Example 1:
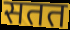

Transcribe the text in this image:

सतत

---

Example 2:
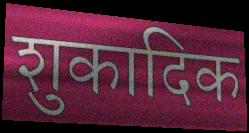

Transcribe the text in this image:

शुकादिक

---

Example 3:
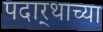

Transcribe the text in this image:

पदार्थाच्या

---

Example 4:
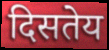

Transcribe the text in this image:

दिसतेय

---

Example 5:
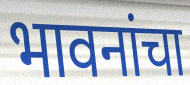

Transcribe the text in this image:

भावनांचा